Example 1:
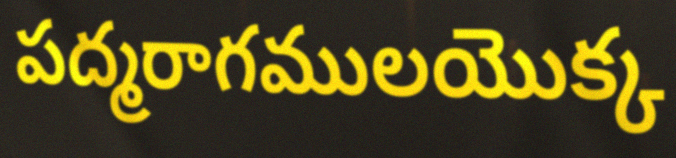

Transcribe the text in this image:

పద్మరాగములయొక్క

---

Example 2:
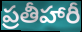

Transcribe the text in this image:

ప్రతీహారీ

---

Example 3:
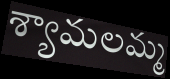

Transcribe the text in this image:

శ్యామలమ్మ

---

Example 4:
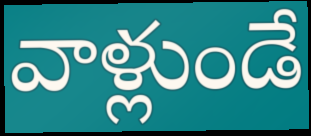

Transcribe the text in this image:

వాళ్లుండే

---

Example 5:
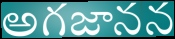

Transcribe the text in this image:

అగజానన